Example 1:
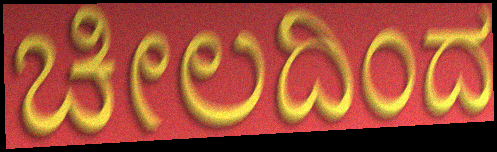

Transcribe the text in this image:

ಚೀಲದಿಂದ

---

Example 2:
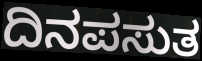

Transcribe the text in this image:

ದಿನಪಸುತ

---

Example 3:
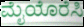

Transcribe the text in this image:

ಮೈಯೊರೆಸಿ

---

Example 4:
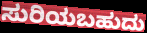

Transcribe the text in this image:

ಸುರಿಯಬಹುದು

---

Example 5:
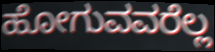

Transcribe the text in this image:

ಹೋಗುವವರೆಲ್ಲ